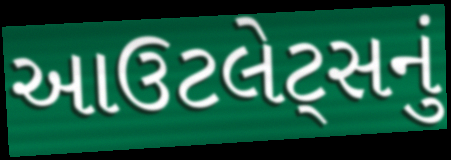
આઉટલેટ્સનું